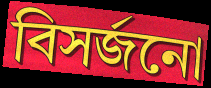
বিসৰ্জনো